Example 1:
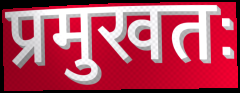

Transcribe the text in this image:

प्रमुखतः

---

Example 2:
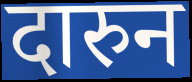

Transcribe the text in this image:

दारुन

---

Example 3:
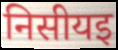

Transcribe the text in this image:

निसीयइ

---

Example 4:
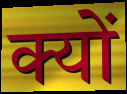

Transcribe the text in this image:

क्‍यों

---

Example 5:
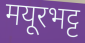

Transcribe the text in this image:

मयूरभट्ट